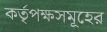
কর্তৃপক্ষসমূহের